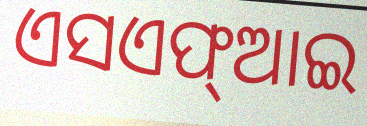
ଏସଏଫ୍ଆଇ